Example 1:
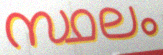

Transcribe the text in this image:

സ്ഥലം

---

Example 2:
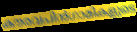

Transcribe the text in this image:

കൗരവപിൻഗാമികളുടെ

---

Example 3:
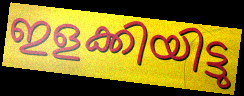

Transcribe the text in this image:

ഇളക്കിയിട്ടു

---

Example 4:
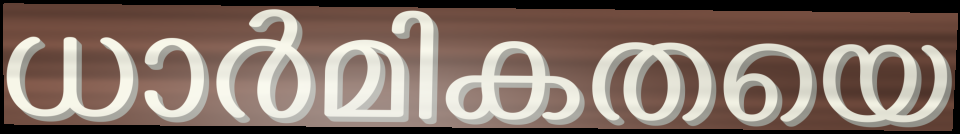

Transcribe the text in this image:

ധാർമികതയെ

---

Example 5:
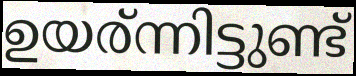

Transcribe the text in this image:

ഉയര്ന്നിട്ടുണ്ട്